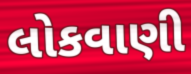
લોકવાણી